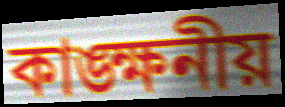
কাঙ্ক্ষনীয়